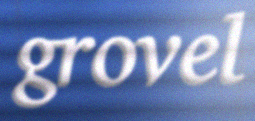
grovel